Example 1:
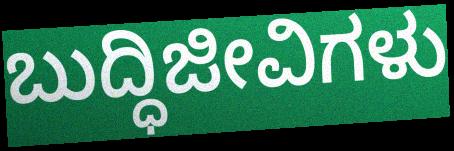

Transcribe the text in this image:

ಬುದ್ಧಿಜೀವಿಗಳು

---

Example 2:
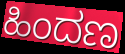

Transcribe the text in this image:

ಹಿಂದಣ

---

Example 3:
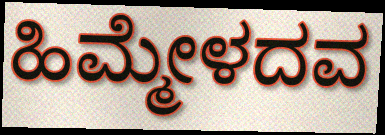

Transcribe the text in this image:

ಹಿಮ್ಮೇಳದವ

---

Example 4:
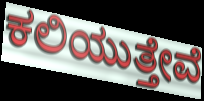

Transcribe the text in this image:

ಕಲಿಯುತ್ತೇವೆ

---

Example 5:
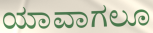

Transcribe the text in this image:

ಯಾವಾಗಲೂ